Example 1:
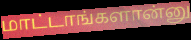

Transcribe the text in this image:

மாட்டாங்களான்னு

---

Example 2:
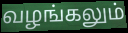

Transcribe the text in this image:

வழங்கலும்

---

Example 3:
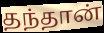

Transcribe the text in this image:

தந்தான்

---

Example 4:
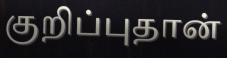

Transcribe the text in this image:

குறிப்புதான்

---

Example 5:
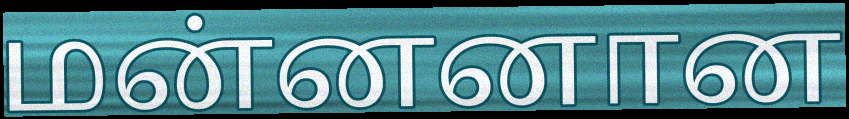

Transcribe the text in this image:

மன்னனான